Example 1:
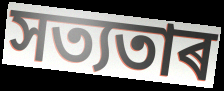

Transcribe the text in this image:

সত্যতাৰ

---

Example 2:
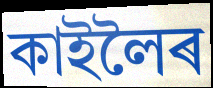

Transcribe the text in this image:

কাইলৈৰ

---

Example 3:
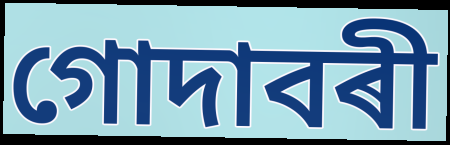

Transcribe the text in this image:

গোদাবৰী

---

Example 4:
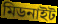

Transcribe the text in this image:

মিডনাইট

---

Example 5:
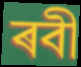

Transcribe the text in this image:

ৰবী